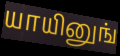
யாயினுங்